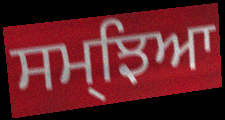
ਸਮ੍ਝਿਆ